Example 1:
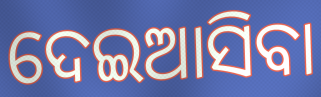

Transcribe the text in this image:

ଦେଇଆସିବା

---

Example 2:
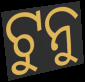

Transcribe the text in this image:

ଟୁନୁ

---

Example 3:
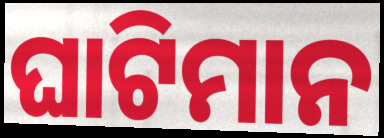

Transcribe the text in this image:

ଘାଟିମାନ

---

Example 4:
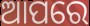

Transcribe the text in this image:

ଆପରେ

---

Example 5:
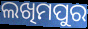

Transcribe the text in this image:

ଲଖିମପୁର